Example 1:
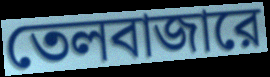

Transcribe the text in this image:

তেলবাজারে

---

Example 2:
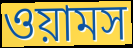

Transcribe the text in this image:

ওয়ামস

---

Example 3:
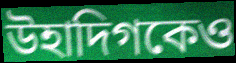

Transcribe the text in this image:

উহাদিগকেও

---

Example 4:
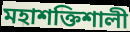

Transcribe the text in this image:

মহাশক্তিশালী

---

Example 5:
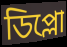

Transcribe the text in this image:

ডিপ্লো